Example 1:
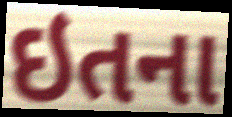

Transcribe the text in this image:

ઇતના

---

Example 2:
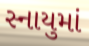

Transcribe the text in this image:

સ્નાયુમાં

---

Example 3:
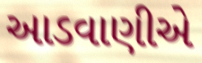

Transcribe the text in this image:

આડવાણીએ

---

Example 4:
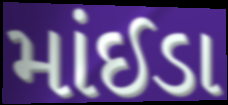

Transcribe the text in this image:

માંઈડા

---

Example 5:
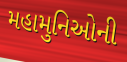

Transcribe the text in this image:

મહામુનિઓની